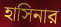
হাসিনার